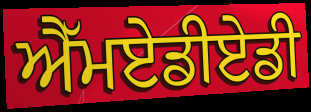
ਐੱਮਏਡੀਏਡੀ